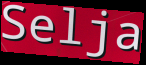
Selja